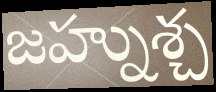
జహ్నుశ్చ